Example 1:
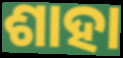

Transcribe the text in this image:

ଶାହା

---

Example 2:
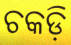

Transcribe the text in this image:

ଚକଡ଼ି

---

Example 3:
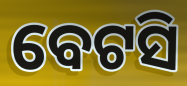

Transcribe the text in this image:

ବେଟସି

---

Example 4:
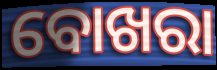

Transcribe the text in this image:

ବୋଖରା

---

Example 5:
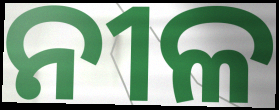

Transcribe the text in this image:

ନୀଳ